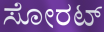
ಸೋರಟ್